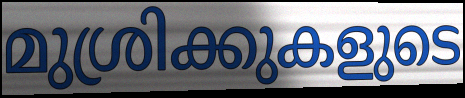
മുശ്രിക്കുകളുടെ